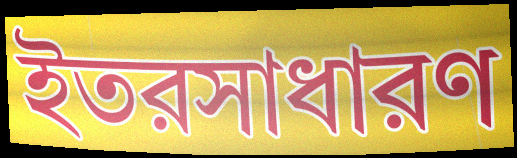
ইতরসাধারণ